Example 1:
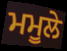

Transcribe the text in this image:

ਮਮੂਲੇ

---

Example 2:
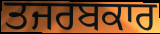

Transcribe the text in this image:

ਤਜਰਬਕਾਰ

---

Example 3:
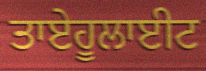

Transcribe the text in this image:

ਤਾਏਹੂਲਾਈਟ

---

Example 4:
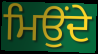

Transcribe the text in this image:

ਮਿਉਂਦੇ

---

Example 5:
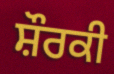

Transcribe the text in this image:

ਸ਼ੌਰਕੀ